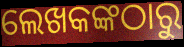
ଲେଖକଙ୍କଠାରୁ